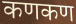
कणकण